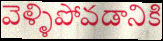
వెళ్ళిపోవడానికి